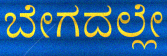
ಬೇಗದಲ್ಲೇ